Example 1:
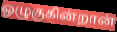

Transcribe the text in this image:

ஒழுகுகின்றான்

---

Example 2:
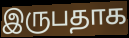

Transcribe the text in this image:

இருபதாக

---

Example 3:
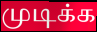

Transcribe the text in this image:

முடிக்க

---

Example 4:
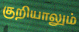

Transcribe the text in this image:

குறியாலும்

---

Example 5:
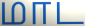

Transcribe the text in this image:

மாட